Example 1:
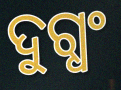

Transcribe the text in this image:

ଦୁଗ୍ଧଂ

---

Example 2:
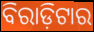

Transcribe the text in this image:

ବିରାଡ଼ିଟାର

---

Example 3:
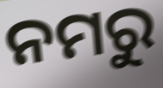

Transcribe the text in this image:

ନମରୁ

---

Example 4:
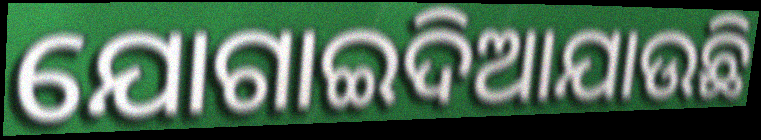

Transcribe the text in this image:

ଯୋଗାଇଦିଆଯାଉଛି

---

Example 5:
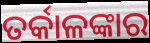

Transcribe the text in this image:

ତର୍କାଳଙ୍କାର